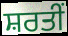
ਸ਼ਰਤੀਂ